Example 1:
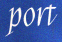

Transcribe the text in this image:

port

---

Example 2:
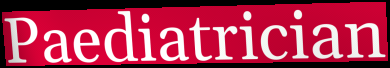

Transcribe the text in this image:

Paediatrician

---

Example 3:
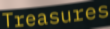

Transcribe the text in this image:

Treasures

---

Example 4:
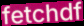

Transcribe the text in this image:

fetchdf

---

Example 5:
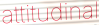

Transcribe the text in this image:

attitudinal